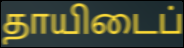
தாயிடைப்